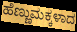
ಹೆಣ್ಣುಮಕ್ಕಳಾದ